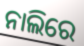
ନାଲିରେ